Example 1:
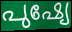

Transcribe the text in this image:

പുഷ്യേ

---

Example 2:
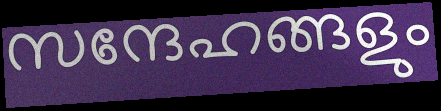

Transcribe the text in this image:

സന്ദേഹങ്ങളും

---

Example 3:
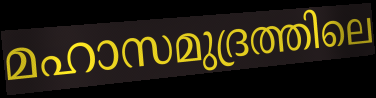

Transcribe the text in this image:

മഹാസമുദ്രത്തിലെ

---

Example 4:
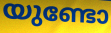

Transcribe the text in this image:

യുണ്ടോ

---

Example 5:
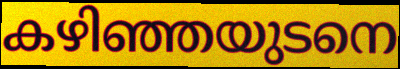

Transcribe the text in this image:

കഴിഞ്ഞയുടനെ